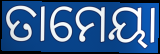
ତାମେୟା